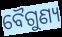
ବୈଗୁଣ୍ୟ